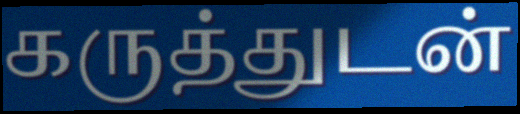
கருத்துடன்